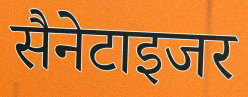
सैनेटाइजर